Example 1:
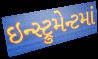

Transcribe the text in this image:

ઇન્સ્ટ્રુમેન્ટમાં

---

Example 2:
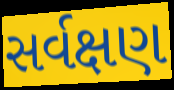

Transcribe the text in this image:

સર્વક્ષણ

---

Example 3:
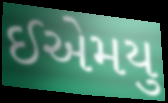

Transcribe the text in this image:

ઈએમયુ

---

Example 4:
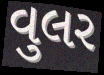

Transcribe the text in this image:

વુલર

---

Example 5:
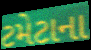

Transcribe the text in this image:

ટમેટાના